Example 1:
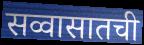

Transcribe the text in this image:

सव्वासातची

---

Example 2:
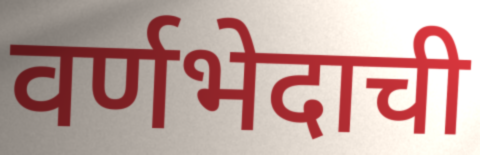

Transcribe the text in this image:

वर्णभेदाची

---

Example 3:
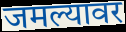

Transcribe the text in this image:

जमल्यावर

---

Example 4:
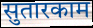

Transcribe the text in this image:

सुतारकाम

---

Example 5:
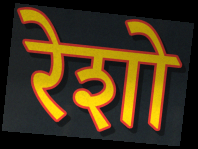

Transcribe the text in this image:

रेशो